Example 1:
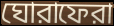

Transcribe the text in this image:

ঘোরাফেরা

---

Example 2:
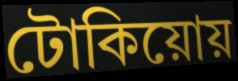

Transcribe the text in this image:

টোকিয়োয়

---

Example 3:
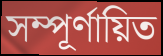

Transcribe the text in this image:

সম্পূর্ণায়িত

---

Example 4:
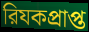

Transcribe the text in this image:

রিযকপ্রাপ্ত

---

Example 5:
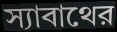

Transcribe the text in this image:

স্যাবাথের